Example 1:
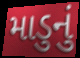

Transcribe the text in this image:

માડુનું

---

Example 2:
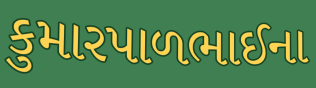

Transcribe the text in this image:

કુમારપાળભાઈના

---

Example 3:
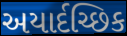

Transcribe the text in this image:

અયાર્દચ્છિક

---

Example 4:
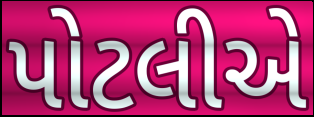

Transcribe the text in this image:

પોટલીએ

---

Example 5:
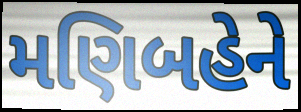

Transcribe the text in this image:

મણિબહેને